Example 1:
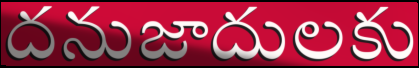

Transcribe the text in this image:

దనుజాదులకు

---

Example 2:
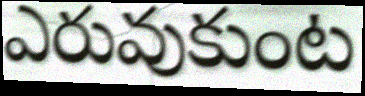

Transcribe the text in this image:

ఎరువుకుంట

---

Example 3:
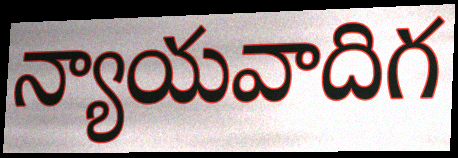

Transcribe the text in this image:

న్యాయవాదిగ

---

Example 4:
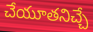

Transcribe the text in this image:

చేయూతనిచ్చే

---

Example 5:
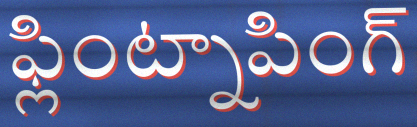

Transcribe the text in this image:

ఫ్లింట్నాపింగ్